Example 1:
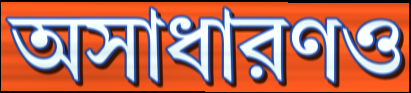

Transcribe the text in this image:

অসাধারণও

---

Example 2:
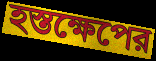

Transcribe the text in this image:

হস্তক্ষেপের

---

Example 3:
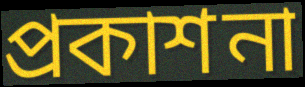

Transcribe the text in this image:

প্রকাশনা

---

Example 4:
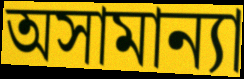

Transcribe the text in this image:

অসামান্যা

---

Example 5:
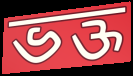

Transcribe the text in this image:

ভক্ত